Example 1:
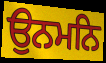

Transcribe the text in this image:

ਉਨਮਨਿ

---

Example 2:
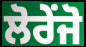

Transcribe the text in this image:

ਲੋਰੇਂਜੋ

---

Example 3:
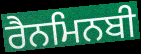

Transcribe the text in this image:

ਰੈਨਮਿਨਬੀ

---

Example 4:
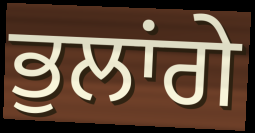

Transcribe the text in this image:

ਭੁਲਾਂਗੇ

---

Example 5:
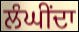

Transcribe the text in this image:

ਲੰਘੀਂਦਾ